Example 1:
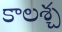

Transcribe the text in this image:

కాలశ్చ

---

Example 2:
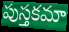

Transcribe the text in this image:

పుస్తకమా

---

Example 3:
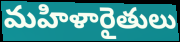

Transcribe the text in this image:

మహిళారైతులు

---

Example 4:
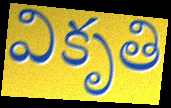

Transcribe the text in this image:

వికృతి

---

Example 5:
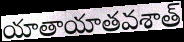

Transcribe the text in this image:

యాతాయాతవశాత్